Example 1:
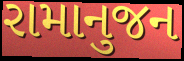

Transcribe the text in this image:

રામાનુજન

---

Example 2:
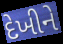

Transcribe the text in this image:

દેખીને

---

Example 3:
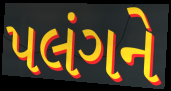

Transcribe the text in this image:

પલંગને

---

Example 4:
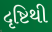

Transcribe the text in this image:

દૃષ્ટિથી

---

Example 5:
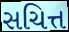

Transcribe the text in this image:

સચિત્ત